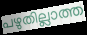
പഴുതില്ലാത്ത